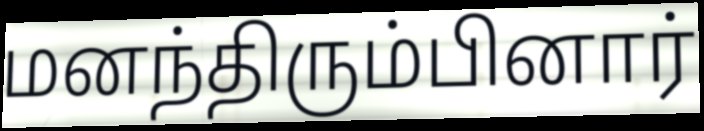
மனந்திரும்பினார்